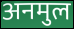
अनमुल